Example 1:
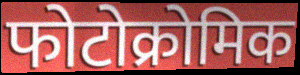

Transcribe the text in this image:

फोटोक्रोमिक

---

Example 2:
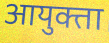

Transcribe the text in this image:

आयुक्ता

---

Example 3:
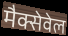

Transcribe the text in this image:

मैक्सेवेल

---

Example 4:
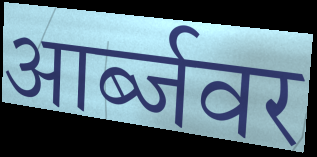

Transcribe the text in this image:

आर्ब्जवर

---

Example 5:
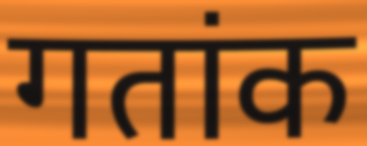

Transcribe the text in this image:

गतांक